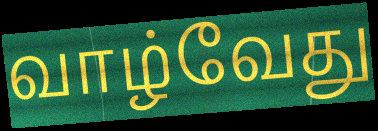
வாழ்வேது